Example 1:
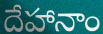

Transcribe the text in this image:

దేహానాం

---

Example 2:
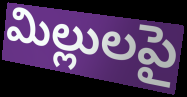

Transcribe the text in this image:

మిల్లులపై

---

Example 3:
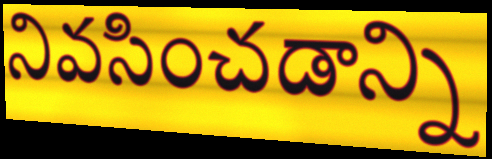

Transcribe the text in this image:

నివసించడాన్ని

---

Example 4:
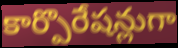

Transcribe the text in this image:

కార్పొరేషన్లుగా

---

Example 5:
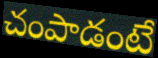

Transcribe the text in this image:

చంపాడంటే